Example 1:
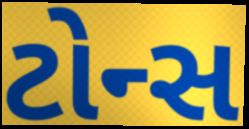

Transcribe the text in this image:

ટોન્સ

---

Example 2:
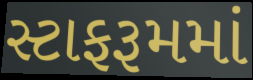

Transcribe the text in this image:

સ્ટાફરૂમમાં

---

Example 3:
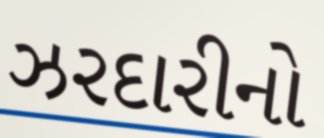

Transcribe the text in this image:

ઝરદારીનો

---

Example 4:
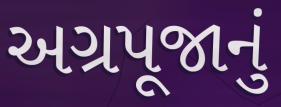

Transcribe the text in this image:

અગ્રપૂજાનું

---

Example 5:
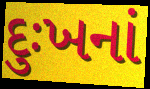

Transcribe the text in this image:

દુઃખનાં